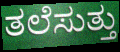
ತಲೆಸುತ್ತು